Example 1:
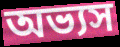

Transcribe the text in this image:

অভ্যস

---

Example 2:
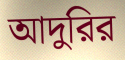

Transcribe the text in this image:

আদুরির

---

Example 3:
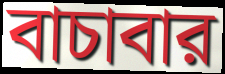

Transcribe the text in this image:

বাচাবার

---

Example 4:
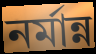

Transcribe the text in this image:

নর্মান্ন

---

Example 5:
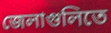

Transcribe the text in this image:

জেলাগুলিতে